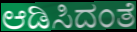
ಆಡಿಸಿದಂತೆ